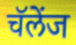
चॅलेंज